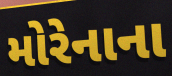
મોરેનાના